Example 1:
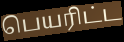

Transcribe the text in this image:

பெயரிட்ட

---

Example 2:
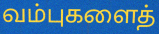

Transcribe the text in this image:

வம்புகளைத்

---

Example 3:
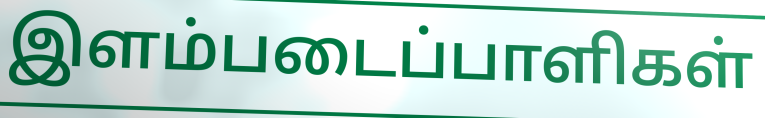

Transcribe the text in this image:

இளம்படைப்பாளிகள்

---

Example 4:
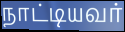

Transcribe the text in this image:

நாட்டியவர்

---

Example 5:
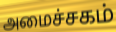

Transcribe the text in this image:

அமைச்சகம்